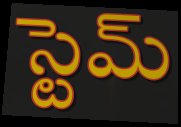
స్టెమ్